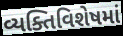
વ્યક્તિવિશેષમાં